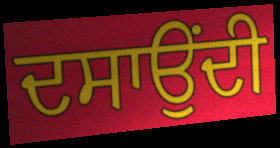
ਦਸਾਉਂਦੀ